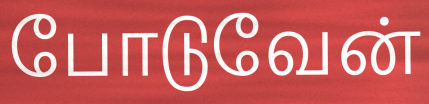
போடுவேன்